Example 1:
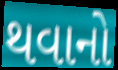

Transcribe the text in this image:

થવાનો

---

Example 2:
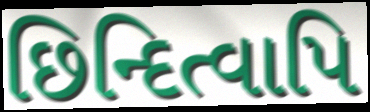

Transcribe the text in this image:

છિન્દિત્વાપિ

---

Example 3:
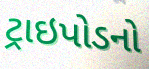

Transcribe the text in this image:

ટ્રાઇપોડનો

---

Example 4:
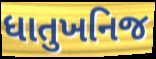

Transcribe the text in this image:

ધાતુખનિજ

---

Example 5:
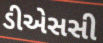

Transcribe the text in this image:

ડીએસસી